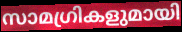
സാമഗ്രികളുമായി